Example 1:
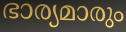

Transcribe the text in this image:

ഭാര്യമാരും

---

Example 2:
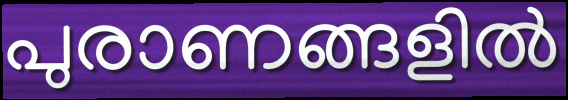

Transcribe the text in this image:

പുരാണങ്ങളിൽ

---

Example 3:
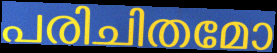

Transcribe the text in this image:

പരിചിതമോ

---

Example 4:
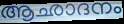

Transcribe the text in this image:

ആഛാദനം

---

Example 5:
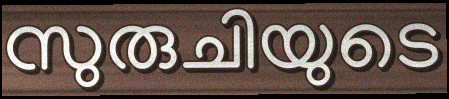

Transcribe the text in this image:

സുരുചിയുടെ